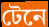
টেনে